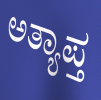
ಅತ್ಯಾಪ್ತ